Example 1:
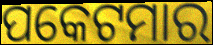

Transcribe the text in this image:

ପକେଟମାର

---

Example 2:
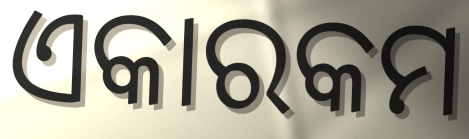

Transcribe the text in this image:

ଏକାରକମ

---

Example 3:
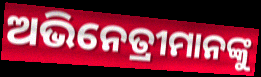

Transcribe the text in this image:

ଅଭିନେତ୍ରୀମାନଙ୍କୁ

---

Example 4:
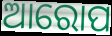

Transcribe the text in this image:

ଆରୋପ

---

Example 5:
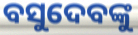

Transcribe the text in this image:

ବସୁଦେବଙ୍କୁ